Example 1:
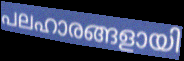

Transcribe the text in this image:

പലഹാരങ്ങളായി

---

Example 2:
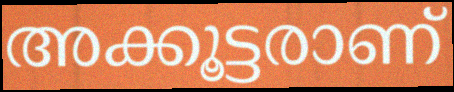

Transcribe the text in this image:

അക്കൂട്ടരാണ്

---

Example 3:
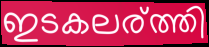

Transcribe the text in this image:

ഇടകലര്ത്തി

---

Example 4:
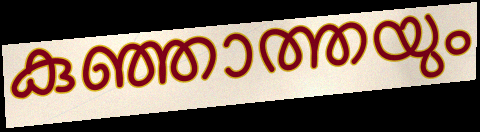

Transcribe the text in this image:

കുഞ്ഞാത്തയും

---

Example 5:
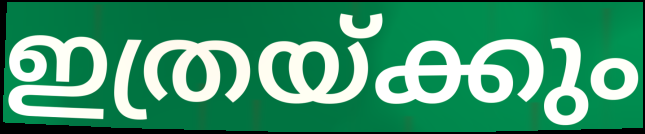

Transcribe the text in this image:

ഇത്രയ്ക്കും